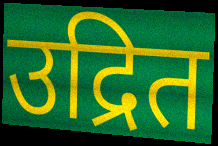
उद्रित